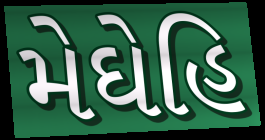
મેઘેહિ